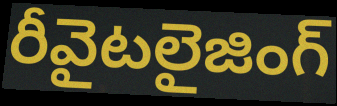
రీవైటలైజింగ్